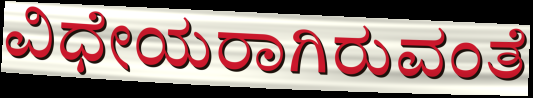
ವಿಧೇಯರಾಗಿರುವಂತೆ